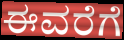
ಈವರೆಗೆ